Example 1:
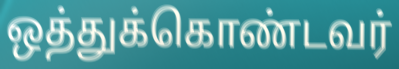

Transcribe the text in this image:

ஒத்துக்கொண்டவர்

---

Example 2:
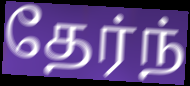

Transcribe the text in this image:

தேர்ந்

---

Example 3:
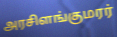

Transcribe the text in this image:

அரசிளங்குமரர்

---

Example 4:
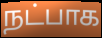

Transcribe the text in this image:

நட்பாக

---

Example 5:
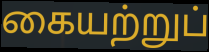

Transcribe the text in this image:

கையற்றுப்